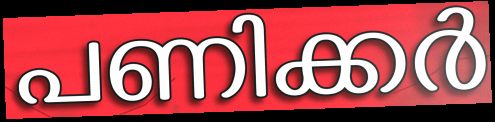
പണിക്കർ